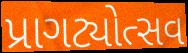
પ્રાગટ્યોત્સવ